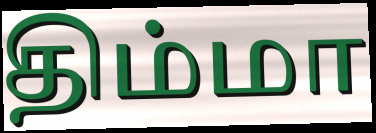
திம்மா